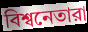
বিশ্বনেতারা